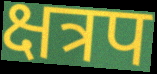
क्षत्रप